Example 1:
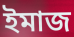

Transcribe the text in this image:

ইমাজ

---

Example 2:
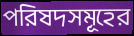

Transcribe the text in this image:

পরিষদসমূহের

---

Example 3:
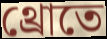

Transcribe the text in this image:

থ্রোতে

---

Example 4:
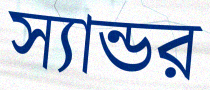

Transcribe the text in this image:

স্যান্ডর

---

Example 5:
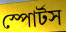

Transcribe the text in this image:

স্পোর্টস